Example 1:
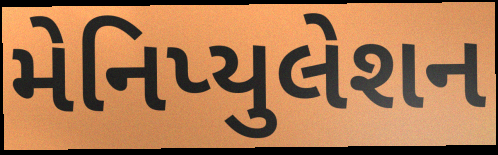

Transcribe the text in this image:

મેનિપ્યુલેશન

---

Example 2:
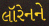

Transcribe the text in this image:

લૉરેનને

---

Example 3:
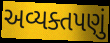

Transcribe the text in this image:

અવ્યક્તપણું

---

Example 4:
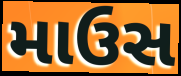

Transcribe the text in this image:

માઉસ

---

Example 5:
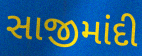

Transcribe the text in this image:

સાજીમાંદી